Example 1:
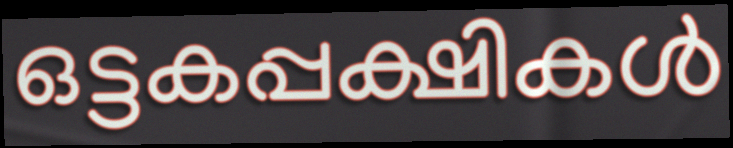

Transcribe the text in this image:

ഒട്ടകപ്പക്ഷികൾ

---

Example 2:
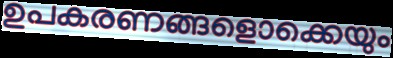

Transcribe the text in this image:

ഉപകരണങ്ങളൊക്കെയും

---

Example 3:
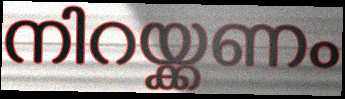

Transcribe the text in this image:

നിറയ്ക്കണം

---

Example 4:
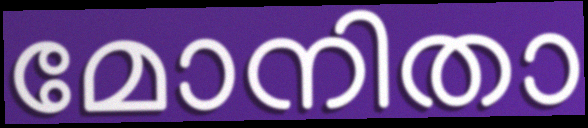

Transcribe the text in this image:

മോനിതാ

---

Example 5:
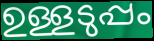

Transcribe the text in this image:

ഉള്ളടുപ്പം